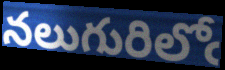
నలుగురిలోఁ